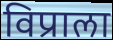
विप्राला